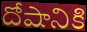
దోషానికి